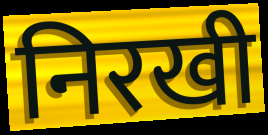
निरखी